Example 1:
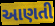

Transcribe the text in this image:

આણતી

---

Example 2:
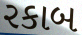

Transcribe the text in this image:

રકાબ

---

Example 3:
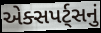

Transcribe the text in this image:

એક્સપર્ટ્સનું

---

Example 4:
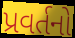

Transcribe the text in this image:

પ્રવર્તનો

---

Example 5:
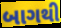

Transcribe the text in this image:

બાગથી